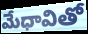
మేధావితో